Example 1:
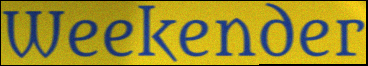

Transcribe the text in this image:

Weekender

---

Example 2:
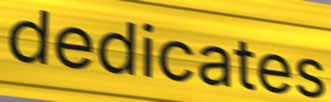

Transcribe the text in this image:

dedicates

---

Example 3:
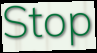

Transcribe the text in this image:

Stop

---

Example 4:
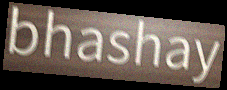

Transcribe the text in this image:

bhashay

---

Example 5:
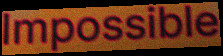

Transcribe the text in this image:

Impossible